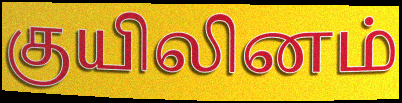
குயிலினம்